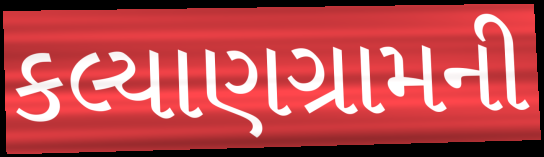
કલ્યાણગ્રામની